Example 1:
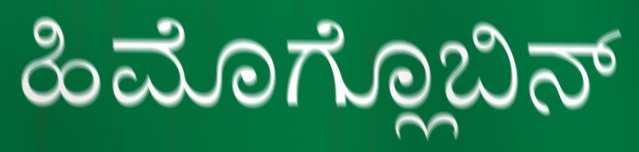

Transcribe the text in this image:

ಹಿಮೊಗ್ಲೊಬಿನ್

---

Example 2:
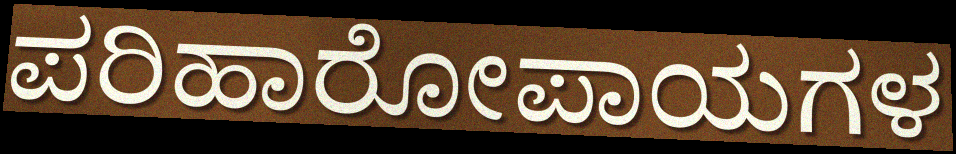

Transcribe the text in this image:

ಪರಿಹಾರೋಪಾಯಗಳ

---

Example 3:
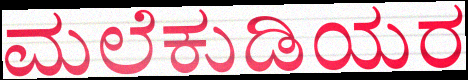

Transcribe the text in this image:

ಮಲೆಕುಡಿಯರ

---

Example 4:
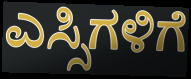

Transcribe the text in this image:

ಎಸ್ಸಿಗಳಿಗೆ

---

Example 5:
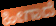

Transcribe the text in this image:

ಹೀಗಾದೆ